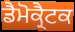
ਡੈਮੋਕ੍ਰੈਟਕ